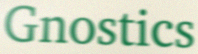
Gnostics